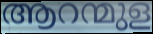
ആറന്മുള